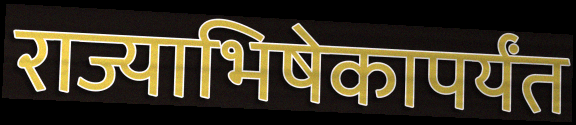
राज्याभिषेकापर्यंत